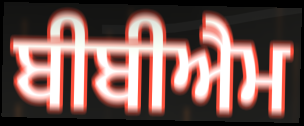
ਬੀਬੀਐਮ